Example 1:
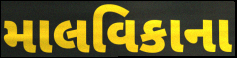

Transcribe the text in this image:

માલવિકાના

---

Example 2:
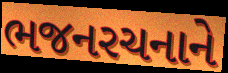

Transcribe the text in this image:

ભજનરચનાને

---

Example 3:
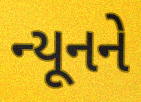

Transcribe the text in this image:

ન્યૂનને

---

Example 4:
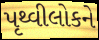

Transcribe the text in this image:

પૃથ્વીલોકને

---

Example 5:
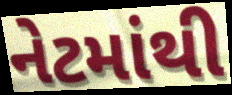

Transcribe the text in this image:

નેટમાંથી